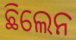
ଛିଲେନ